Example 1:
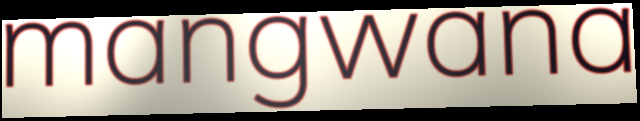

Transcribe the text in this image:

mangwana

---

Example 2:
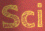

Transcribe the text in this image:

Sci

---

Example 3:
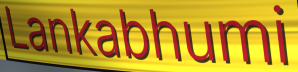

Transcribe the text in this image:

Lankabhumi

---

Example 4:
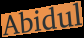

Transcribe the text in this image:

Abidul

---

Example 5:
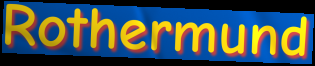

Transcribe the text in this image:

Rothermund